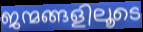
ജന്മങ്ങളിലൂടെ